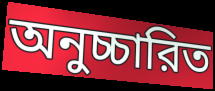
অনুচ্চারিত